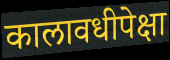
कालावधीपेक्षा